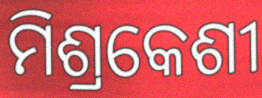
ମିଶ୍ରକେଶୀ